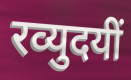
रव्युदयीं